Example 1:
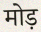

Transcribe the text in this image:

मोड़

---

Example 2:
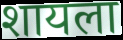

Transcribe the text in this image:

शायला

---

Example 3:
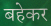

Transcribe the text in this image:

बहेकर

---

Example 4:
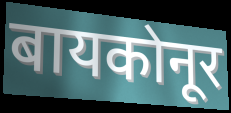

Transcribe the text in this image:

बायकोनूर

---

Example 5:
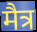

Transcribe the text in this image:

मैत्र